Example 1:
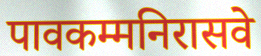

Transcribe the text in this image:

पावकम्मनिरासवे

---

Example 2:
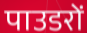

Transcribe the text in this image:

पाउडरों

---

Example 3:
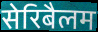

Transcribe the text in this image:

सेरिबैलम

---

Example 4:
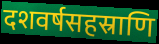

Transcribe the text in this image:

दशवर्षसहस्राणि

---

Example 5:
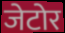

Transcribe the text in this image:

जेटोर